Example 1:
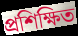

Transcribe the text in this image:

প্ৰশিক্ষিত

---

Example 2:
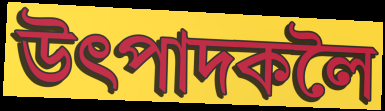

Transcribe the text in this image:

উৎপাদকলৈ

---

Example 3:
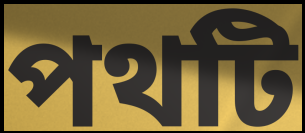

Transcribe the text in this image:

পথটি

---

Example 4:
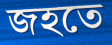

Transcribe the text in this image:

জহতে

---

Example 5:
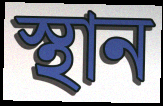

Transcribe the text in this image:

স্থান